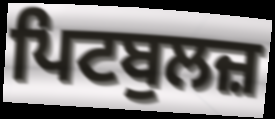
ਪਿਟਬੁਲਜ਼